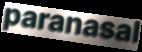
paranasal